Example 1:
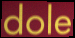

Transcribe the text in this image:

dole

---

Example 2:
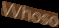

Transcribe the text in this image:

Whoso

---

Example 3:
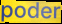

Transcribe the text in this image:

poder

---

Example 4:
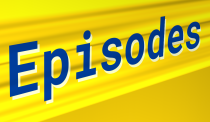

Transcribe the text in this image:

Episodes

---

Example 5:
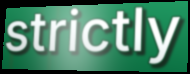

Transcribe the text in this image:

strictly